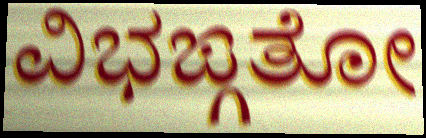
ವಿಭಙ್ಗತೋ